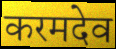
करमदेव